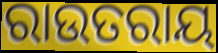
ରାଉତରାୟ